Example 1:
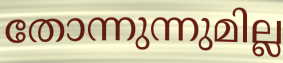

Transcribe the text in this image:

തോന്നുന്നുമില്ല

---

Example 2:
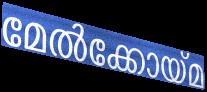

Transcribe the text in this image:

മേൽക്കോയ്മ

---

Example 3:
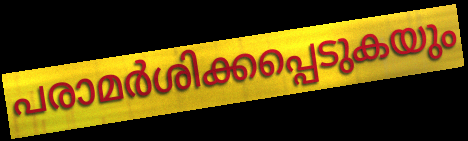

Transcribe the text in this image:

പരാമർശിക്കപ്പെടുകയും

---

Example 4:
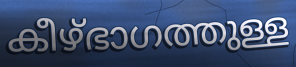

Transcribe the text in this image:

കീഴ്ഭാഗത്തുള്ള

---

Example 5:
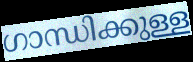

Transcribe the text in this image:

ഗാന്ധിക്കുള്ള